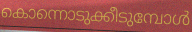
കൊന്നൊടുക്കീടുമ്പോൾ